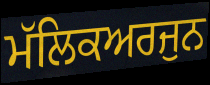
ਮੱਲਿਕਅਰਜੁਨ